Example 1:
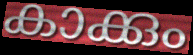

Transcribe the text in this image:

കാക്കും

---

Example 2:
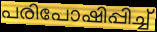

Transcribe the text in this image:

പരിപോഷിപ്പിച്ച്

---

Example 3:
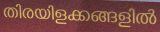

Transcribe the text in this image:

തിരയിളക്കങ്ങളിൽ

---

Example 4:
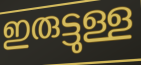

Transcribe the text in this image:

ഇരുട്ടുള്ള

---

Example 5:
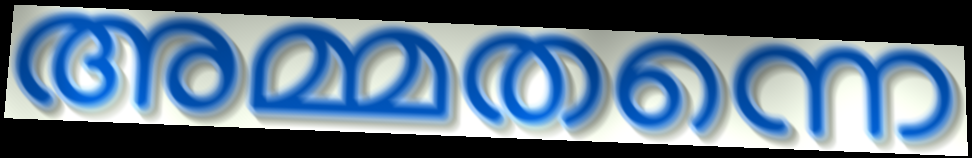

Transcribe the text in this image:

അമ്മതന്നെ